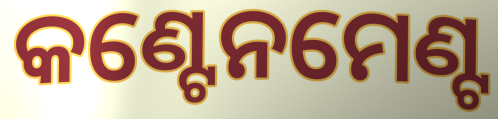
କଣ୍ଟେନମେଣ୍ଟ